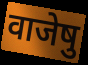
वाजेषु